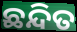
ଛନ୍ଦିତ